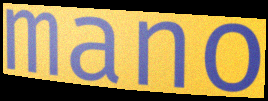
mano